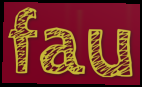
fau